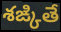
శఙ్కితే